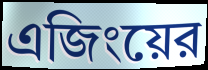
এজিংয়ের